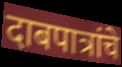
दाबपात्रांचे